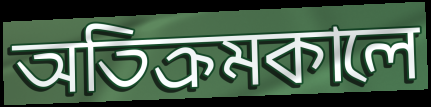
অতিক্রমকালে